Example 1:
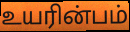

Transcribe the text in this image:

உயரின்பம்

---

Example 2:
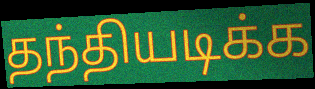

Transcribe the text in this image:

தந்தியடிக்க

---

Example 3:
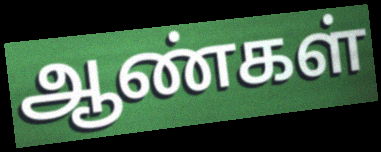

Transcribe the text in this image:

ஆண்கள்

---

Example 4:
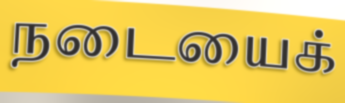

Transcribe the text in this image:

நடையைக்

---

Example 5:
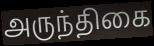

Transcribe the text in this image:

அருந்திகை